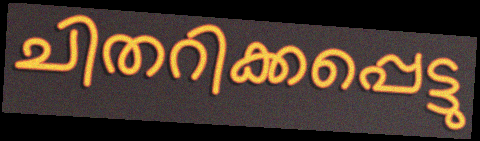
ചിതറിക്കപ്പെട്ടു